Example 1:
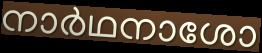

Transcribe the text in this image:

നാർഥനാശോ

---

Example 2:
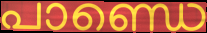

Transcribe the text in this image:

പാണ്ഡെ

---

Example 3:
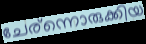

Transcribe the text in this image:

ചേര്ന്നൊരുക്കിയ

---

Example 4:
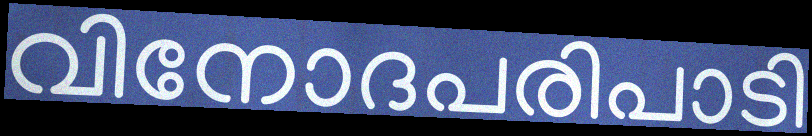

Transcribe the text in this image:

വിനോദപരിപാടി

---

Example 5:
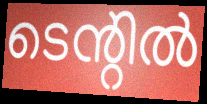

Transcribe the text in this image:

ടെന്റിൽ